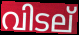
വിടല്